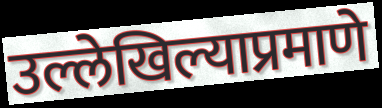
उल्लेखिल्याप्रमाणे